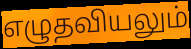
எழுதவியலும்